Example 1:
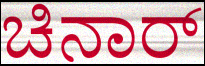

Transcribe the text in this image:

ಚಿನಾರ್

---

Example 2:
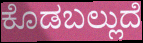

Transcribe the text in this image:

ಕೊಡಬಲ್ಲುದೆ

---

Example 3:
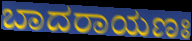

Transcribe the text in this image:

ಬಾದರಾಯಣಃ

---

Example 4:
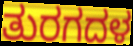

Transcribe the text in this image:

ತುರಗದಳ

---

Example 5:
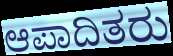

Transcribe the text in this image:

ಆಪಾದಿತರು